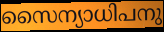
സൈന്യാധിപനു